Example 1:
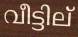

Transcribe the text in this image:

വീട്ടില്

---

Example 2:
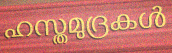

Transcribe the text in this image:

ഹസ്തമുദ്രകൾ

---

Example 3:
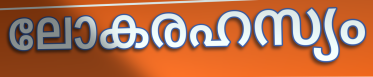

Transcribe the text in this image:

ലോകരഹസ്യം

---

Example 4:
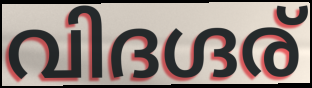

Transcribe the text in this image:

വിദഗ്ദര്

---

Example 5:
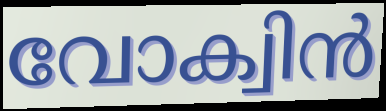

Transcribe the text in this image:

വോക്വിൻ